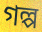
গল্প